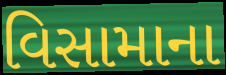
વિસામાના